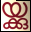
യ്ക്കു